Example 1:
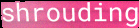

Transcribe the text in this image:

shrouding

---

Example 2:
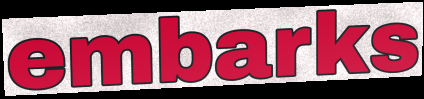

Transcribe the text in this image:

embarks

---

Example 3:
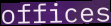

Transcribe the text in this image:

offices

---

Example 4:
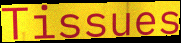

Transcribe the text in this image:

Tissues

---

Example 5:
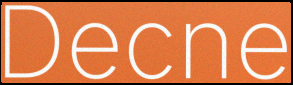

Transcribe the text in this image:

Decne